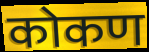
कोकण